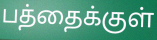
பத்தைக்குள்